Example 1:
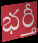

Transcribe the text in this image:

భర్తీ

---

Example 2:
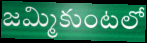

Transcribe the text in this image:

జమ్మికుంటలో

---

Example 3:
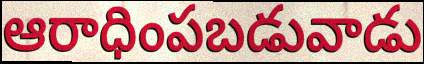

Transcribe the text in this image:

ఆరాధింపబడువాడు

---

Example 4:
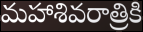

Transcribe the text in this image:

మహాశివరాత్రికి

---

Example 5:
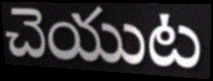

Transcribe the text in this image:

చెయుట